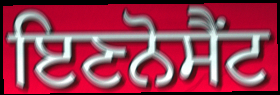
ਇਣਨੋਸੈਂਟ